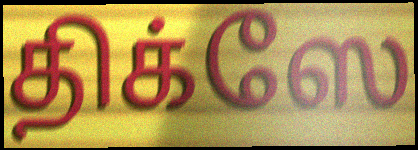
திக்ஸே